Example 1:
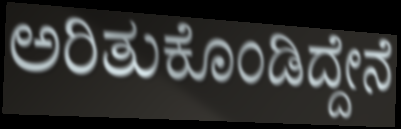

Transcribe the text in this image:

ಅರಿತುಕೊಂಡಿದ್ದೇನೆ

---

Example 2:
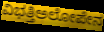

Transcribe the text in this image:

ವಿಭತ್ತಿಅಲೋಪೇನ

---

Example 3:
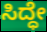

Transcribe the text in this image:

ಸಿದ್ಧೇ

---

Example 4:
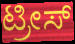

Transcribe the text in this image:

ಟ್ರೀಸ್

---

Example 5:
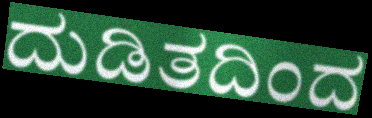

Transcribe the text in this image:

ದುಡಿತದಿಂದ